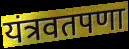
यंत्रवतपणा